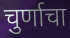
चुर्णाचा